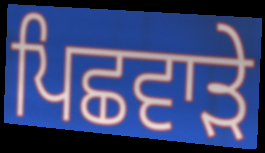
ਪਿਛਵਾੜੇ